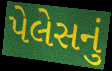
પેલેસનું